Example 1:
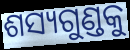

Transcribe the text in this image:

ଶସ୍ୟଗୁଣ୍ଡକୁ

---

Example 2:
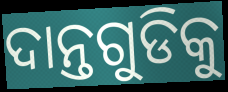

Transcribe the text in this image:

ଦାନ୍ତଗୁଡିକୁ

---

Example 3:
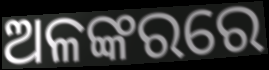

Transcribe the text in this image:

ଅଳଙ୍କରରେ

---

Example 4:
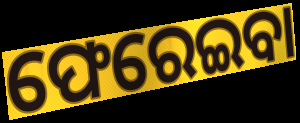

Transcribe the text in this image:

ଫେରେଇବା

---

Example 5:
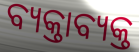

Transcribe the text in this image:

ବ୍ୟକ୍ତାବ୍ୟକ୍ତ